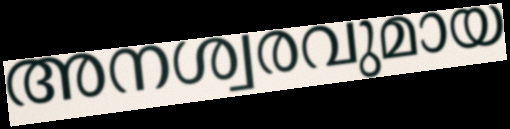
അനശ്വരവുമായ